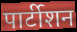
पार्टीशन